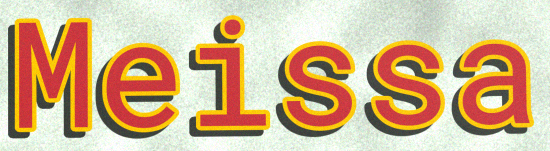
Meissa